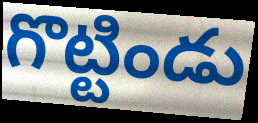
గొట్టిండు